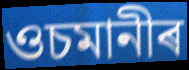
ওচমানীৰ